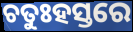
ଚତୁଃହସ୍ତରେ